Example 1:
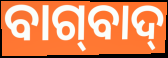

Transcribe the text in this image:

ବାଗ୍‌ବାଦ୍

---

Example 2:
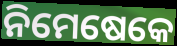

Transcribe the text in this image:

ନିମେଷେକେ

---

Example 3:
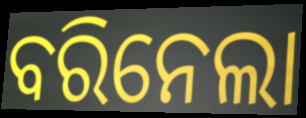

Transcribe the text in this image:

ବରିନେଲା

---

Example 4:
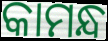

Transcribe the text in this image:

କାମନ୍ଧ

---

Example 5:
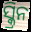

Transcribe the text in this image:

ସ୍କ୍ରିନ